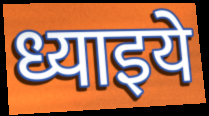
ध्याइये